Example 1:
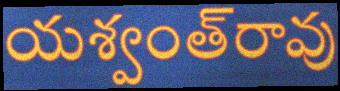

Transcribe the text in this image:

యశ్వంత్‌రావు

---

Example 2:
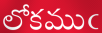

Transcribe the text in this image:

లోకముఁ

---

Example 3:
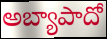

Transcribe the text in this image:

అబ్యాపాదో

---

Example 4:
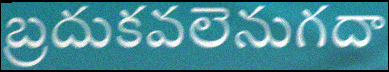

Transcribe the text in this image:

బ్రదుకవలెనుగదా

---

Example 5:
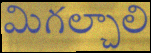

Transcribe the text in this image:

మిగల్చాలి